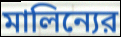
মালিন্যের